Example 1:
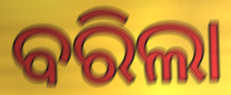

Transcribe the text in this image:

ବରିଲା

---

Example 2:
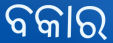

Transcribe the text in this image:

ବକାର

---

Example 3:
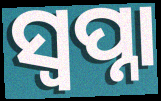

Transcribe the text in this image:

ସ୍ୱପ୍ନା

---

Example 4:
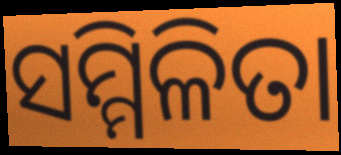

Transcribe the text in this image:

ସମ୍ମିଳିତା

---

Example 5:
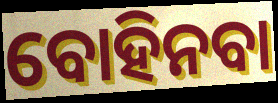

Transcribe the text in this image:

ବୋହିନବା